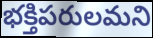
భక్తిపరులమని